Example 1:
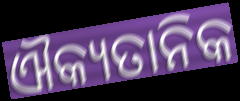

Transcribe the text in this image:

ଐକ୍ୟତାନିକ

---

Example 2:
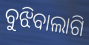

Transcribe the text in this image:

ବୁଝିବାଲାଗି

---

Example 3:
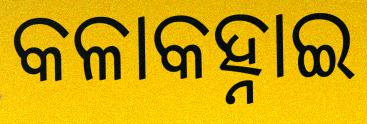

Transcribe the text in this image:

କଳାକହ୍ନାଇ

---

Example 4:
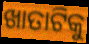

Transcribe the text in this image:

ଖାତାଟିକୁ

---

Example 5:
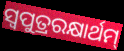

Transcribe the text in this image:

ସ୍ଵପୁତ୍ରରକ୍ଷାର୍ଥମ୍